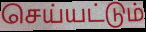
செய்யட்டும்